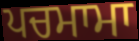
ਪਚਮਾਮਾ